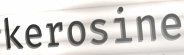
kerosine